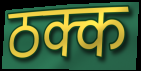
ठक्क